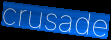
crusade